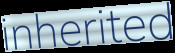
inherited